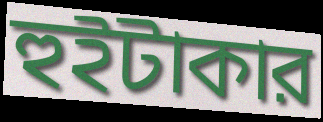
হুইটাকার